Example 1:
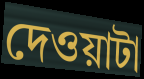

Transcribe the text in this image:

দেওয়াটা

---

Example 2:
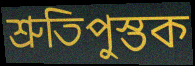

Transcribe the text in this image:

শ্রুতিপুস্তক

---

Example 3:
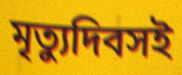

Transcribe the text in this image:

মৃত্যুদিবসই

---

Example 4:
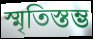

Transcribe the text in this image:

স্মৃতিস্তম্ভ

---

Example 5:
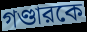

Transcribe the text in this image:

গণ্ডারকে